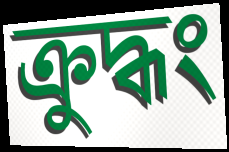
ক্রুদ্ধং